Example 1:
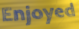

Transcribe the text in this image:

Enjoyed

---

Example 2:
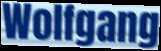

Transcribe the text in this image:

Wolfgang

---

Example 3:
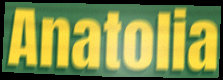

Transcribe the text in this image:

Anatolia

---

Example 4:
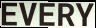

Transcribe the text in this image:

EVERY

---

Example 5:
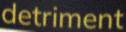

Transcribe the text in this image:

detriment